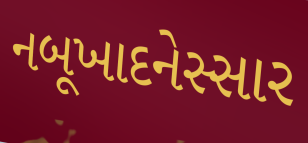
નબૂખાદનેસ્સાર